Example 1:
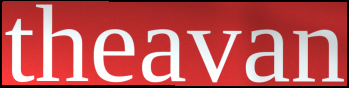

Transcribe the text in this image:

theavan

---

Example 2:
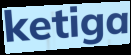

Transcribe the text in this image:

ketiga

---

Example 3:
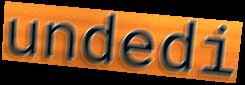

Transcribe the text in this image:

undedi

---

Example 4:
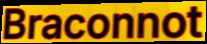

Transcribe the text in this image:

Braconnot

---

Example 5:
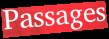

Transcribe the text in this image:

Passages